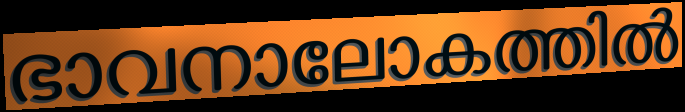
ഭാവനാലോകത്തിൽ